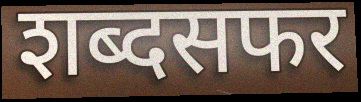
शब्दसफर